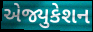
એજ્યુકેશન